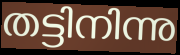
തട്ടിനിന്നു